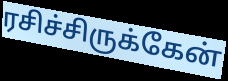
ரசிச்சிருக்கேன்